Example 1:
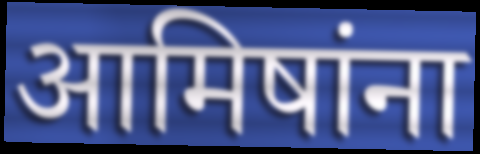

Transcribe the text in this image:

आमिषांना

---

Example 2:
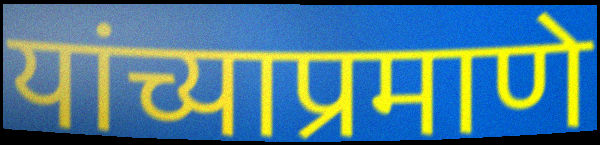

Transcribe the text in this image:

यांच्याप्रमाणे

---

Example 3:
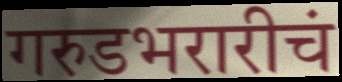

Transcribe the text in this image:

गरुडभरारीचं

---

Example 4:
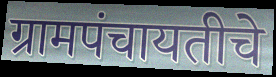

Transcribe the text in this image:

ग्रामपंचायतीचे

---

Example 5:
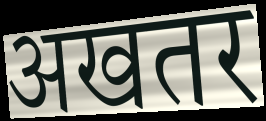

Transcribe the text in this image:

अखतर